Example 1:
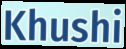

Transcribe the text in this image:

Khushi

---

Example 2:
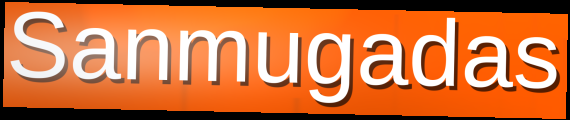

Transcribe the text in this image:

Sanmugadas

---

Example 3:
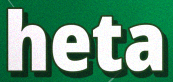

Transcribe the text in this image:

heta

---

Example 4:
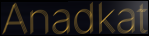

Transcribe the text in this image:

Anadkat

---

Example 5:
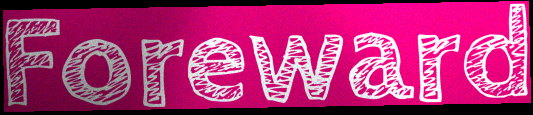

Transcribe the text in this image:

Foreward